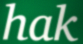
hak